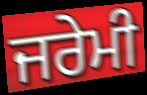
ਜਰੇਮੀ